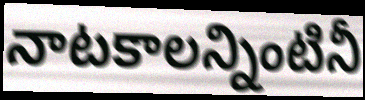
నాటకాలన్నింటినీ